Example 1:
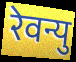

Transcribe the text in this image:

रेवन्यु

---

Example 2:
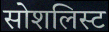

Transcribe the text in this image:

सोशलिस्‍ट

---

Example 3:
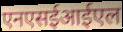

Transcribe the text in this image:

एनएसईआईएल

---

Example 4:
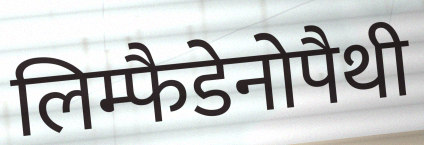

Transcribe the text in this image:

लिम्फैडेनोपैथी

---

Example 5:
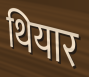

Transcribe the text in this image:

थियार